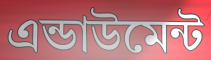
এন্ডাউমেন্ট